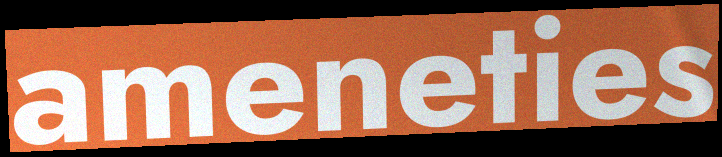
ameneties